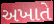
અખાતે